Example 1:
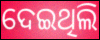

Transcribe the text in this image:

ଦେଇଥିଲି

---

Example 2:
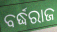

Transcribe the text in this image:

ବର୍ଦ୍ଧରାଜ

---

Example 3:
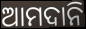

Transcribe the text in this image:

ଆମଦାନି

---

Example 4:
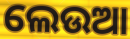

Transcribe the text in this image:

ଲେଉଆ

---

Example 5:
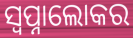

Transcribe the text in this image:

ସ୍ୱପ୍ନାଲୋକର